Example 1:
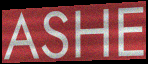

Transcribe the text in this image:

ASHE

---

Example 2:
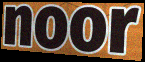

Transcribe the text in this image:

noor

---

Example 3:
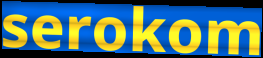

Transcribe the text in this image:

serokom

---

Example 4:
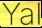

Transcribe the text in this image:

Yal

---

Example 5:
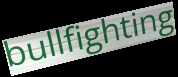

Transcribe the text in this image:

bullfighting